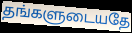
தங்களுடையதே